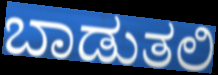
ಬಾಡುತಲಿ